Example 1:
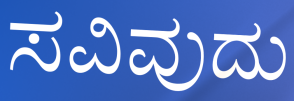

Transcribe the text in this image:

ಸವಿವುದು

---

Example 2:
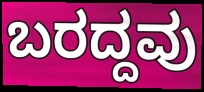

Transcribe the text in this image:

ಬರದ್ದವು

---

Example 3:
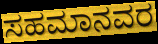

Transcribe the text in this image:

ಸಹಮಾನವರ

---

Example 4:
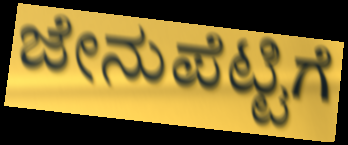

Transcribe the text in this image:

ಜೇನುಪೆಟ್ಟಿಗೆ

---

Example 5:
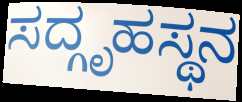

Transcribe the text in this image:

ಸದ್ಗೃಹಸ್ಥನ